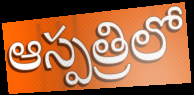
ఆస్పత్రిలో